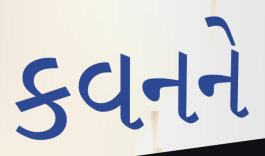
કવનને